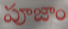
పూజాం